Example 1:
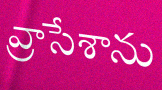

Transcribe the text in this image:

వ్రాసేశాను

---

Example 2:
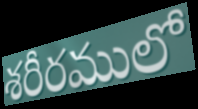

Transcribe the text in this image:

శరీరములో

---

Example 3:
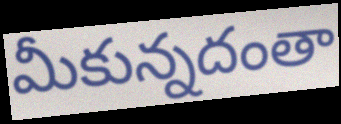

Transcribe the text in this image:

మీకున్నదంతా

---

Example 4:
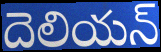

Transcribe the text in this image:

దెలియన్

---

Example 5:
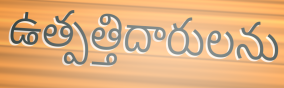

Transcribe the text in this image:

ఉత్పత్తిదారులను